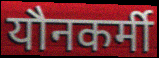
यौनकर्मी